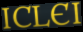
ICLEI